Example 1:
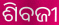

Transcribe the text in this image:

ଶିବଜୀ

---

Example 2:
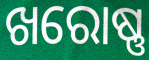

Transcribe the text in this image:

ଖରୋଷ୍ଣ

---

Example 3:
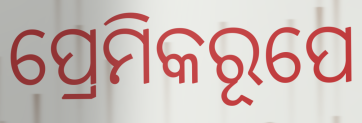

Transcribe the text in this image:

ପ୍ରେମିକରୂପେ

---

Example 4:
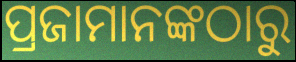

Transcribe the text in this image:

ପ୍ରଜାମାନଙ୍କଠାରୁ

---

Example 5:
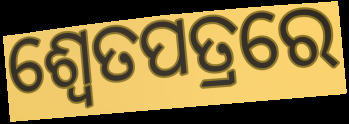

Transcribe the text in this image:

ଶ୍ଵେତପତ୍ରରେ